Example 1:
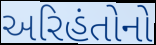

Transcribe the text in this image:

અરિહંતોનો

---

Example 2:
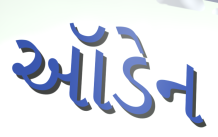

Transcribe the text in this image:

ઑડેન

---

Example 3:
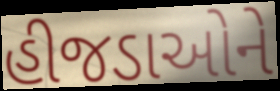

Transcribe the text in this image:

હીજડાઓને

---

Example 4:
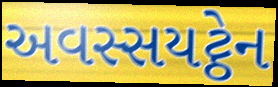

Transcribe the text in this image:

અવસ્સયટ્ઠેન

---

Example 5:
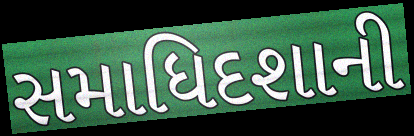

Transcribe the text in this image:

સમાધિદશાની